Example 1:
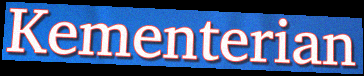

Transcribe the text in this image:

Kementerian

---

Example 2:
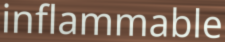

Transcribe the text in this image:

inflammable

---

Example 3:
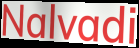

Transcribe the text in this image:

Nalvadi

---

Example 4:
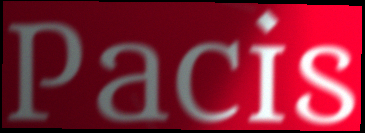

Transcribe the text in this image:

Pacis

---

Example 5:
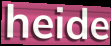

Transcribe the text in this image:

heide